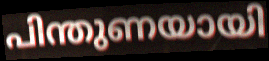
പിന്തുണയായി